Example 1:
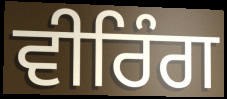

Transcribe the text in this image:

ਵੀਰਿੰਗ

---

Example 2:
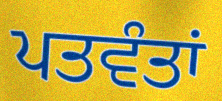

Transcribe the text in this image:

ਪਤਵੰਤਾਂ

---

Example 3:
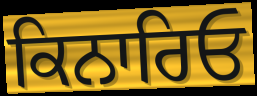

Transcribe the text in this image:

ਕਿਨਾਰਿਓ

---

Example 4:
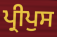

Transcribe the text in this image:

ਪ੍ਰੀਪੁਸ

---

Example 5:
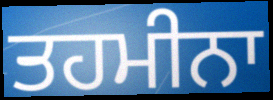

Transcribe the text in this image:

ਤਹਮੀਨਾ